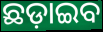
ଛଡ଼ାଇବ